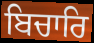
ਬਿਚਾਰਿ